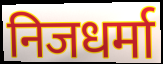
निजधर्मा